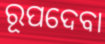
ରୂପଦେବା